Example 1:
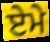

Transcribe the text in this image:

ਏਮੇ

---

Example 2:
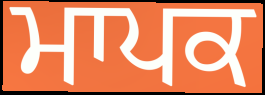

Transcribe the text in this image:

ਮਾਪਕ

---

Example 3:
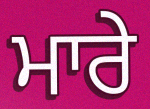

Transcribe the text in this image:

ਮਾਰੇ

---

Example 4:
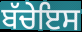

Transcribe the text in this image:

ਬੱਚੇਇਸ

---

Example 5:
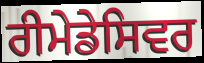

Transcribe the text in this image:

ਰੀਮੇਡੇਸਿਵਰ